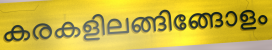
കരകളിലങ്ങിങ്ങോളം